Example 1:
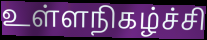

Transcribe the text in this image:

உள்ளநிகழ்ச்சி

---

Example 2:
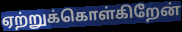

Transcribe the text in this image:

ஏற்றுக்கொள்கிறேன்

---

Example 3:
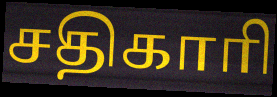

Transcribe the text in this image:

சதிகாரி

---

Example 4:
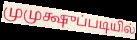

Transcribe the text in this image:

முமுக்ஷுப்படியில்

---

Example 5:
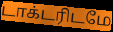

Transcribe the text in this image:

டாக்டரிடமே